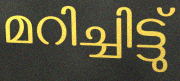
മറിച്ചിട്ടു്